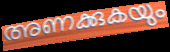
അണക്കുകയും